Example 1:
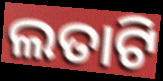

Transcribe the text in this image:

ଲତାଟି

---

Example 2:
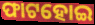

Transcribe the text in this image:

ଫାଟହୋଇ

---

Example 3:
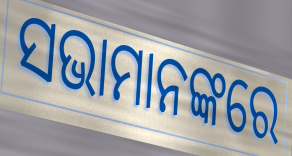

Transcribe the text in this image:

ସଭାମାନଙ୍କରେ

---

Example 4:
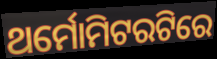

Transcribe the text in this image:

ଥର୍ମୋମିଟରଟିରେ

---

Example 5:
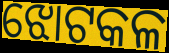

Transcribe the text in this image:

ଝୋଟକଳ